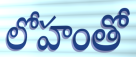
లోహంతో